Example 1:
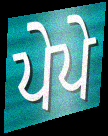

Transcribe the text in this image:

ਪੇਪੇ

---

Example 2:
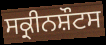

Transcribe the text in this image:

ਸਕ੍ਰੀਨਸ਼ੌਟਸ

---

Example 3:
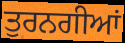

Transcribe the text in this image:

ਤੁਰਨਗੀਆਂ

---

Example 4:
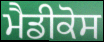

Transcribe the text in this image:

ਮੈਡੀਕੋਸ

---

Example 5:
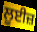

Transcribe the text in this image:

ਲੂਈਜ਼